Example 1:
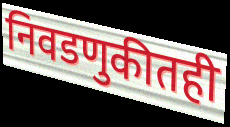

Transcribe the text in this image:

निवडणुकीतही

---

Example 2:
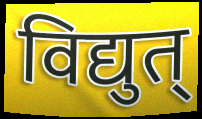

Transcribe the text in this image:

विद्युत्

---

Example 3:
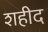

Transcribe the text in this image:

शहीद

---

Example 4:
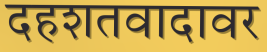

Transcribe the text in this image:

दहशतवादावर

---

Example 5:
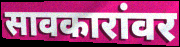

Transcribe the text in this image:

सावकारांवर